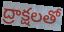
ద్రాక్షలతో